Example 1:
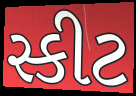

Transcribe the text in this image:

સ્કીટ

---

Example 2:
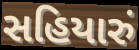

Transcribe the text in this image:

સહિયારું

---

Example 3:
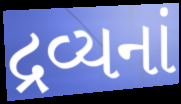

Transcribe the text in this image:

દ્રવ્યનાં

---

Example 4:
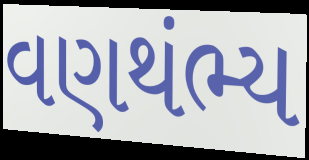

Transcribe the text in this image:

વણથંભ્ય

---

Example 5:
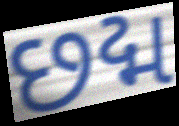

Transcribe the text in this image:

છદ્મ